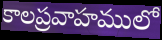
కాలప్రవాహములో